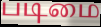
படிமை